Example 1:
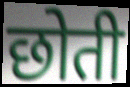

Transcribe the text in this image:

छोती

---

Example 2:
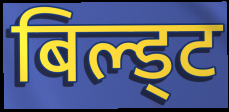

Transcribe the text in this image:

बिल्ड्ट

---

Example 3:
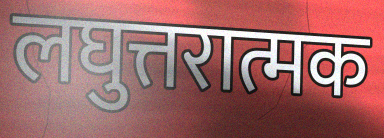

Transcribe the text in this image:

लघुत्तरात्मक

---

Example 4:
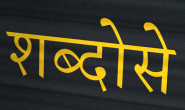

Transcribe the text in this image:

शब्दोसे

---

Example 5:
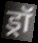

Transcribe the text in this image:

ड्रॉ